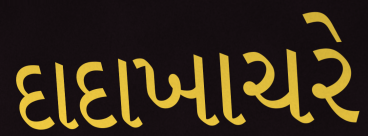
દાદાખાચરે